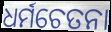
ଧର୍ମଚେତନା